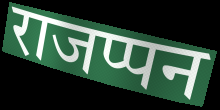
राजप्पन